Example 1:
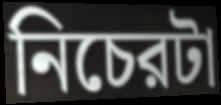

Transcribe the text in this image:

নিচেরটা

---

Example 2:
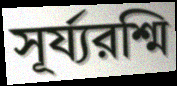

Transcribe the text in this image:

সূর্য্যরশ্মি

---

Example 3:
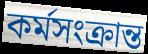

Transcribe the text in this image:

কর্মসংক্রান্ত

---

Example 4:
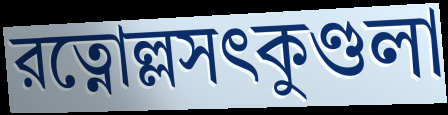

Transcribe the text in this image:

রত্নোল্লসৎকুণ্ডলা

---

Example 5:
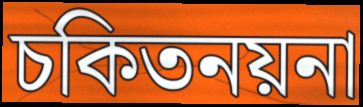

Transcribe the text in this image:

চকিতনয়না